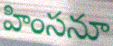
హింసనూ